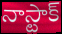
నాస్టాక్